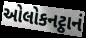
ઓલોકનટ્ઠાનં